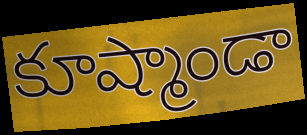
కూష్మాండా